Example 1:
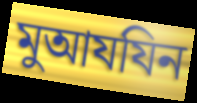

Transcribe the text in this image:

মুআযযিন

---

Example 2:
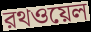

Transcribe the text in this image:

রথওয়েল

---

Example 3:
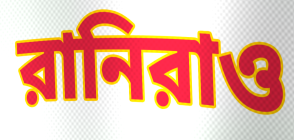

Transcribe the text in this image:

রানিরাও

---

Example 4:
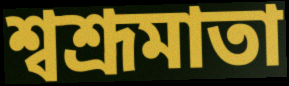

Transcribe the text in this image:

শ্বশ্রূমাতা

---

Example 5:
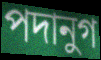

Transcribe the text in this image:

পদানুগ